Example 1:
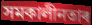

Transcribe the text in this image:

সমকালীনতাৰ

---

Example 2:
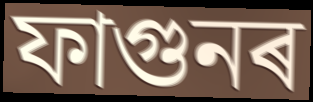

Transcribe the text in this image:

ফাগুনৰ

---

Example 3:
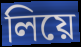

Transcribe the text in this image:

লিয়ে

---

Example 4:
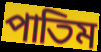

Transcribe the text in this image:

পাতিম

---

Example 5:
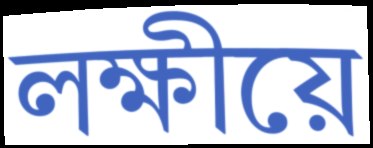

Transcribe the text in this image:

লক্ষীয়ে